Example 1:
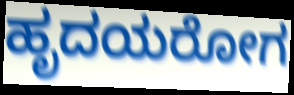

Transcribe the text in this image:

ಹೃದಯರೋಗ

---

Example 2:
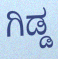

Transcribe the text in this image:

ಗಿಡ್ಡ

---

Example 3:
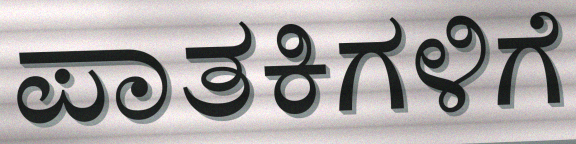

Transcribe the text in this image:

ಪಾತಕಿಗಳಿಗೆ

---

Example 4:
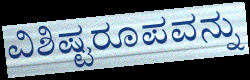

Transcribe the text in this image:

ವಿಶಿಷ್ಟರೂಪವನ್ನು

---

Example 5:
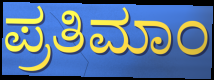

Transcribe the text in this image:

ಪ್ರತಿಮಾಂ